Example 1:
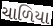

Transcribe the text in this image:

ચાળિયા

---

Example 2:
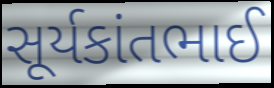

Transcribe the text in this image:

સૂર્યકાંતભાઈ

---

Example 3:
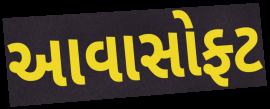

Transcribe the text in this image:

આવાસોફ્ટ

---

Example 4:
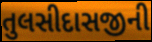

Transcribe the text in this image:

તુલસીદાસજીની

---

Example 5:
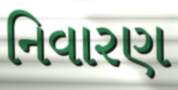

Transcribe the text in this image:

નિવારણ